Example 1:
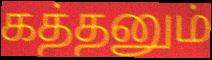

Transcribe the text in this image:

கத்தனும்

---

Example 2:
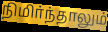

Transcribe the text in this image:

நிமிர்ந்தாலும்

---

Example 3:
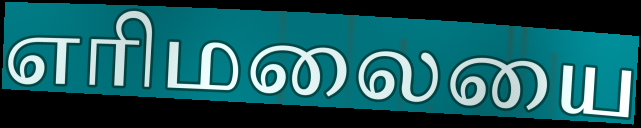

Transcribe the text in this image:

எரிமலையை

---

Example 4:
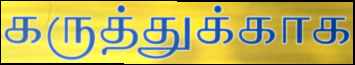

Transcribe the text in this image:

கருத்துக்காக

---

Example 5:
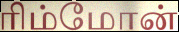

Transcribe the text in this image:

ரிம்மோன்